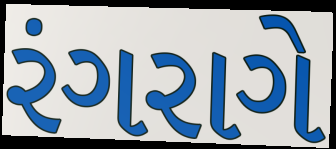
રંગરાગે